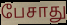
பேசாது